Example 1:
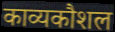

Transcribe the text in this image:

काव्यकौशल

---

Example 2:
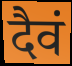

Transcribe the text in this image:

दैवं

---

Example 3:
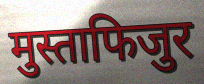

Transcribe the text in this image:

मुस्ताफिजुर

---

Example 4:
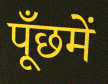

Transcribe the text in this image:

पूँछमें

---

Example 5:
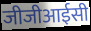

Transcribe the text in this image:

जीजीआईसी